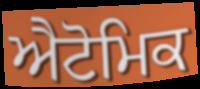
ਐਟੋਮਿਕ